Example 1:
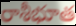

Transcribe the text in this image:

రాశీభూత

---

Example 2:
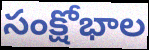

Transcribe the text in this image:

సంక్షోభాల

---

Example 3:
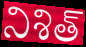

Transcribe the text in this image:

నిశిత్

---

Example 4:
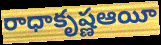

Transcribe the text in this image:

రాధాకృష్ణఆయీ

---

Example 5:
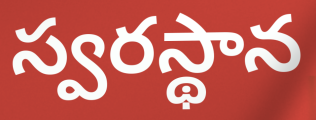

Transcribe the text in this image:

స్వరస్థాన